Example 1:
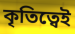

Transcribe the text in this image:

কৃতিত্বেই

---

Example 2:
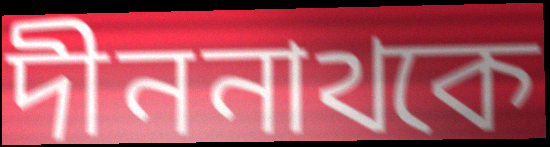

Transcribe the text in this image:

দীননাথকে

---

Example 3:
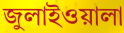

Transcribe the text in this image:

জুলাইওয়ালা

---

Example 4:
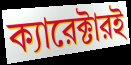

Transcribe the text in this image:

ক্যারেক্টারই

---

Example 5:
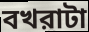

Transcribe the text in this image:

বখরাটা